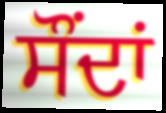
ਸੌਂਦਾਂ